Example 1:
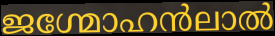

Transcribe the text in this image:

ജഗ്മോഹൻലാൽ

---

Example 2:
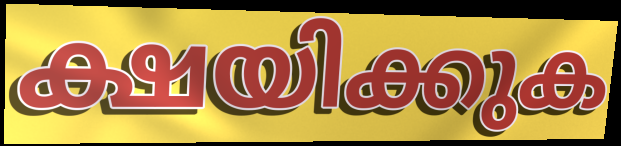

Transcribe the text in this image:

ക്ഷയിക്കുക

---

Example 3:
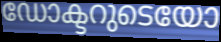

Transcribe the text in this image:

ഡോക്ടറുടെയോ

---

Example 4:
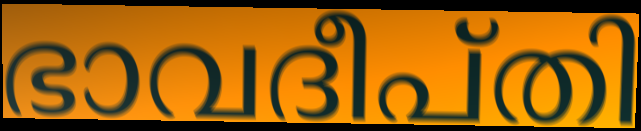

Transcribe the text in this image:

ഭാവദീപ്തി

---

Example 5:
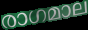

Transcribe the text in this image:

രാഗമാല